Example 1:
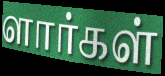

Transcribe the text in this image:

ளார்கள்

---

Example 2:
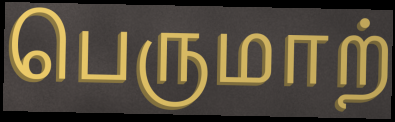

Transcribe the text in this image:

பெருமாற்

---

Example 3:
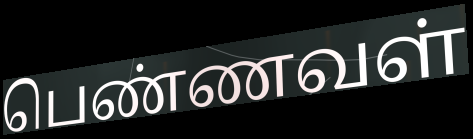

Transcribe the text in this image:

பெண்ணவள்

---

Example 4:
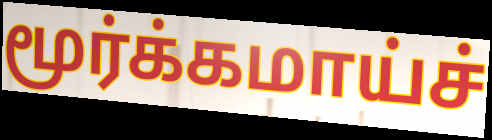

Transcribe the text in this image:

மூர்க்கமாய்ச்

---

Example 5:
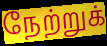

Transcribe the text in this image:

நேற்றுக்